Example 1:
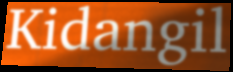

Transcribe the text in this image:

Kidangil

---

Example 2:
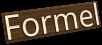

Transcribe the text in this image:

Formel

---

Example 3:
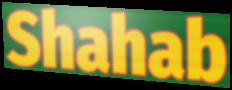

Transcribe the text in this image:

Shahab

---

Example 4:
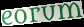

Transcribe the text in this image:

eorum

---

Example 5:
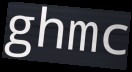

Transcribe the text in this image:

ghmc